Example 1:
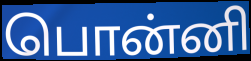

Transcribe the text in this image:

பொன்னி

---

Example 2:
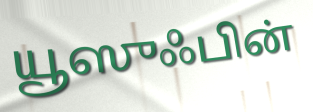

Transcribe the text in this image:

யூஸுஃபின்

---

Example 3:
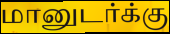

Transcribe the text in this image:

மானுடர்க்கு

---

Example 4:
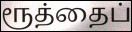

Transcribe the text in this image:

ரூத்தைப்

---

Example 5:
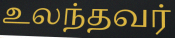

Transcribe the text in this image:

உலந்தவர்